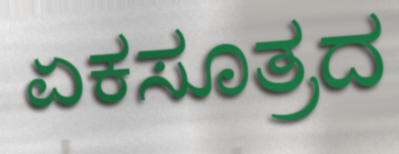
ಏಕಸೂತ್ರದ